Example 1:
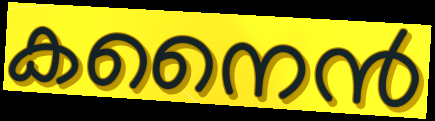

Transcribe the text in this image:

കനൈൻ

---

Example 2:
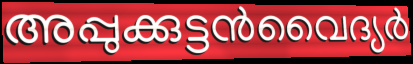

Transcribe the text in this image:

അപ്പുക്കുട്ടൻവൈദ്യർ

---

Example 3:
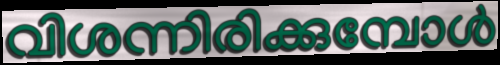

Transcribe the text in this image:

വിശന്നിരിക്കുമ്പോൾ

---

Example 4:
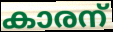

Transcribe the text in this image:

കാരന്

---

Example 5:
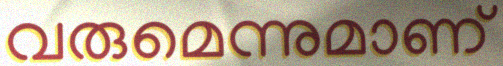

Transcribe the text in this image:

വരുമെന്നുമാണ്